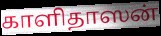
காளிதாஸன்